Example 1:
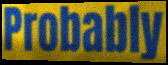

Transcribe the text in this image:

Probably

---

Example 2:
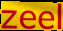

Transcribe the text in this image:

zeel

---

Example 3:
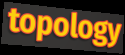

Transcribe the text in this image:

topology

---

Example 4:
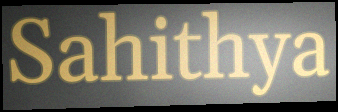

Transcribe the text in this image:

Sahithya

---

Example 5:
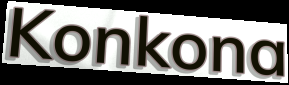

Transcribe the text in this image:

Konkona